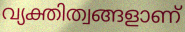
വ്യക്തിത്വങ്ങളാണ്